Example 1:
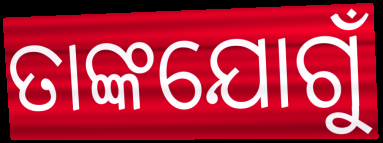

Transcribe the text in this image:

ତାଙ୍କଯୋଗୁଁ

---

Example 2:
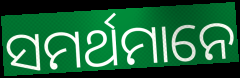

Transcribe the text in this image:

ସମର୍ଥମାନେ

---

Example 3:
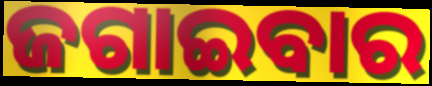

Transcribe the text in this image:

ଜଗାଇବାର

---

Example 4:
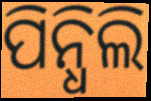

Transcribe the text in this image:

ପିନ୍ଧିଲି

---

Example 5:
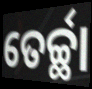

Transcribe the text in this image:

ତେର୍ଚ୍ଛା